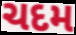
ચદમ